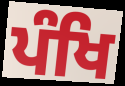
ਪੰਖਿ